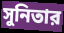
সুনিতার